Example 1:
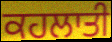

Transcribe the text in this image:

ਕਹਲਾਤੀ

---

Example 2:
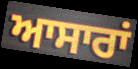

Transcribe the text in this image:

ਆਸਾਰਾਂ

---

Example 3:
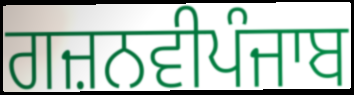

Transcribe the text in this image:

ਗਜ਼ਨਵੀਪੰਜਾਬ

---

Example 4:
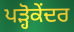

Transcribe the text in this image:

ਪੜ੍ਹੋਕੇਂਦਰ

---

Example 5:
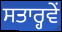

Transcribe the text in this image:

ਸਤਾਰ੍ਹਵੇਂ